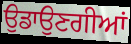
ਉਡਾਉਣਗੀਆਂ